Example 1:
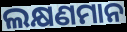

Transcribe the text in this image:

ଲକ୍ଷଣମାନ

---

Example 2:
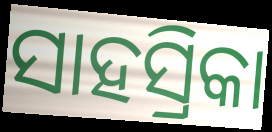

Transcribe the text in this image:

ସାହସ୍ରିକା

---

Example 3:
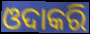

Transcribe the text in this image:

ଓଦାକରି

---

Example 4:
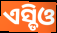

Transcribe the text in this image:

ଏସ୍ଡିଓ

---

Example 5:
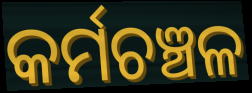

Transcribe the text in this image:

କର୍ମଚଞ୍ଚଳ